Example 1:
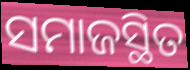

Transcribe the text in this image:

ସମାଜସ୍ଥିତ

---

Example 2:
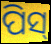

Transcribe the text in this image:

ପିସ୍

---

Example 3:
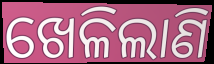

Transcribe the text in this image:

ଖେଳିଲାଣି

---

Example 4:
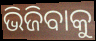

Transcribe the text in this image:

ଭିଜିବାକୁ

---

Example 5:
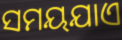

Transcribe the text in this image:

ସମୟଯାଏ